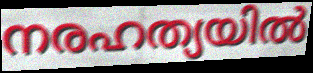
നരഹത്യയിൽ